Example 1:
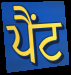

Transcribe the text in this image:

ਪੈਂਟ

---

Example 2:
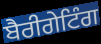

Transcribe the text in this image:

ਬੈਰੀਗੇਟਿੰਗ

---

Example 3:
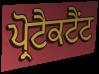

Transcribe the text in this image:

ਪ੍ਰੋਟੈਕਟੈਂਟ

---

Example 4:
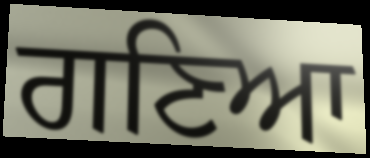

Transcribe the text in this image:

ਗਣਿਆ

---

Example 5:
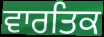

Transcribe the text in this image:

ਵਾਰਤਿਕ